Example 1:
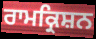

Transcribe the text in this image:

ਰਾਮਕ੍ਰਿਸ਼ਨ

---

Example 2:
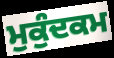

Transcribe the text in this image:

ਮੁਕੁੰਦਕਮ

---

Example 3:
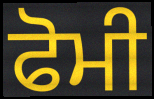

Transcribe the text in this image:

ਫੋਮੀ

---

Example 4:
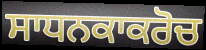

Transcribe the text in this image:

ਸਾਧਨਕਾਕਰੋਚ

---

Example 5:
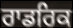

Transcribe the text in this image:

ਰਾਡਰਿਕ